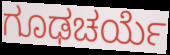
ಗೂಢಚರ್ಯೆ